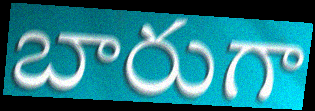
బారుగా